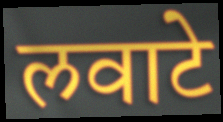
लवाटे